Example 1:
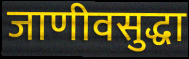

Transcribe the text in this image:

जाणीवसुद्धा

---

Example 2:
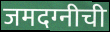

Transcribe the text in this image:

जमदग्नीची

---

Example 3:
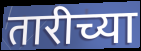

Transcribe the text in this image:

तारीच्या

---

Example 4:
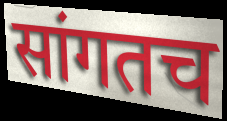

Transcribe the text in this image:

सांगतच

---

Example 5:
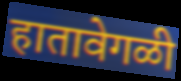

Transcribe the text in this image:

हातावेगळी